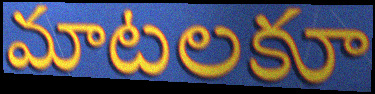
మాటలకూ